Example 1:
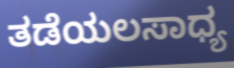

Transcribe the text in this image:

ತಡೆಯಲಸಾಧ್ಯ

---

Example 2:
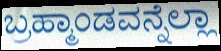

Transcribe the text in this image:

ಬ್ರಹ್ಮಾಂಡವನ್ನೆಲ್ಲಾ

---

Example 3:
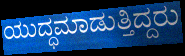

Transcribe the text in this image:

ಯುದ್ಧಮಾಡುತ್ತಿದ್ದರು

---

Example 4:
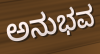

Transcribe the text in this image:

ಅನುಭವ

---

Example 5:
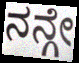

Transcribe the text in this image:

ನನ್ಗೇ